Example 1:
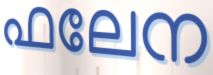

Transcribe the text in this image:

ഫലേന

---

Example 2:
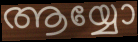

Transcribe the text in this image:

ആയ്യോ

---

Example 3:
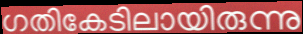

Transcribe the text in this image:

ഗതികേടിലായിരുന്നു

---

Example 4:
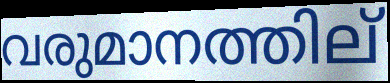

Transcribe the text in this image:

വരുമാനത്തില്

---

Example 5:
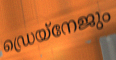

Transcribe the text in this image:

ഡ്രെയ്നേജും